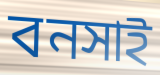
বনসাই